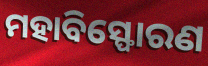
ମହାବିସ୍ଫୋରଣ